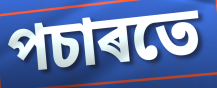
পচাৰতে